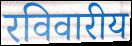
रविवारीय